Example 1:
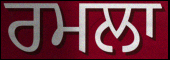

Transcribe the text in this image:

ਰਮਲਾ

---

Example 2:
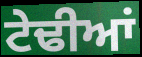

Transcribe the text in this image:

ਟੇਢੀਆਂ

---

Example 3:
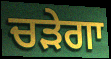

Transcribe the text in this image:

ਚੜੇਗਾ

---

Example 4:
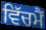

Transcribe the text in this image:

ਵਿੱਚਮੈਂ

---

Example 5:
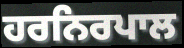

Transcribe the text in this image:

ਹਰਨਿਰਪਾਲ